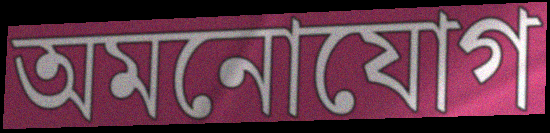
অমনোযোগ